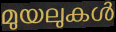
മുയലുകൾ